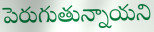
పెరుగుతున్నాయని